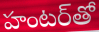
హంటర్‌తో